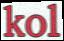
kol